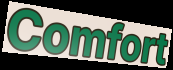
Comfort